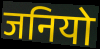
जनियो